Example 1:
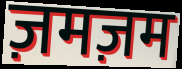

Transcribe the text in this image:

ज़मज़म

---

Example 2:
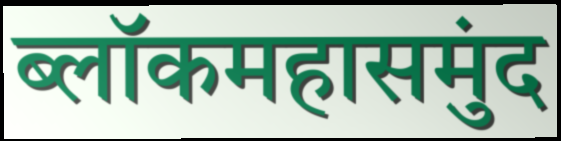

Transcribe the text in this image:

ब्लॉकमहासमुंद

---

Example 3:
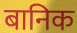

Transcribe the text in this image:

बानिक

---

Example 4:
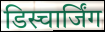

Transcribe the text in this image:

डिस्चार्जिंग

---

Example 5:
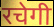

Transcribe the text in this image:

रचेगी